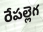
రేపల్లెగ